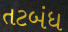
તટબંધ